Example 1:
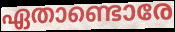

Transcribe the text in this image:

ഏതാണ്ടൊരേ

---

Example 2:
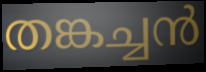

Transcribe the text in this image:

തങ്കച്ചൻ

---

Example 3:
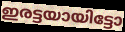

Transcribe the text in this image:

ഇരട്ടയായിട്ടോ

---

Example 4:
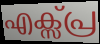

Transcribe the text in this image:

എക്സ്പ്ര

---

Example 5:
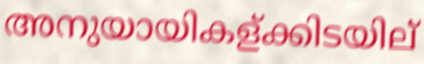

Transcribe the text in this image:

അനുയായികള്ക്കിടയില്